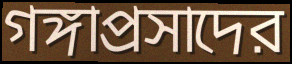
গঙ্গাপ্রসাদের